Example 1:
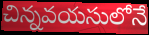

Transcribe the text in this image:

చిన్నవయసులోనే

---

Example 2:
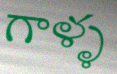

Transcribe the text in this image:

గాళ్ళ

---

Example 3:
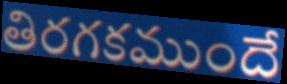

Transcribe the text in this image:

తిరగకముందే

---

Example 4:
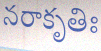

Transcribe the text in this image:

నరాకృతిః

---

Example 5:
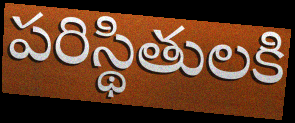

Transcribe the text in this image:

పరిస్థితులకి